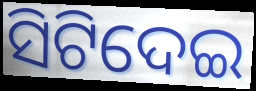
ସିଟିଦେଇ